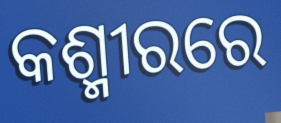
କଶ୍ମୀରରେ